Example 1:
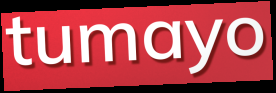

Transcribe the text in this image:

tumayo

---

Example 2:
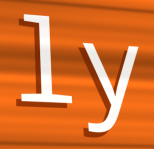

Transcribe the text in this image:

ly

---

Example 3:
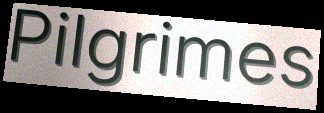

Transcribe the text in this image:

Pilgrimes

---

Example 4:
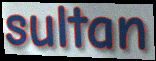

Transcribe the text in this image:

sultan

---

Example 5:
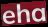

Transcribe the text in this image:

eha